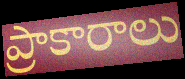
ప్రాకారాలు